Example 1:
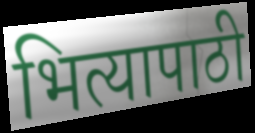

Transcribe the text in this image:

भित्यापाठी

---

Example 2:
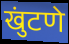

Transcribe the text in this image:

खुंटणे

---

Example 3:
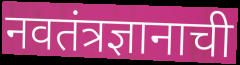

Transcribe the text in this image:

नवतंत्रज्ञानाची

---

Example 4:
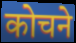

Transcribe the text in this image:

कोचने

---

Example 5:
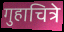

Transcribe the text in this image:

गुहाचित्रे